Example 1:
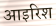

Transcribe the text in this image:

आइरिश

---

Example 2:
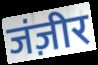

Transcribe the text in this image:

जंज़ीर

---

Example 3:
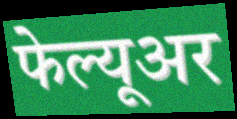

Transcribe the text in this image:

फेल्यूअर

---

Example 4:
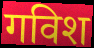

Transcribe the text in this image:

गविश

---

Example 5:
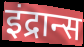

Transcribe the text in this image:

इंद्रान्स